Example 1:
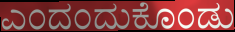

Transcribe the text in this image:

ಎಂದಂದುಕೊಂಡು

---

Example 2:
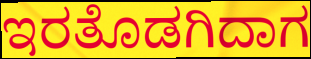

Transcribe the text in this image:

ಇರತೊಡಗಿದಾಗ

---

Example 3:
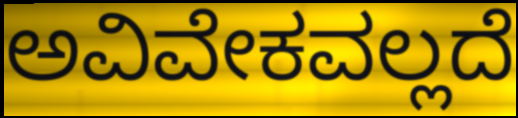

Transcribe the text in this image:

ಅವಿವೇಕವಲ್ಲದೆ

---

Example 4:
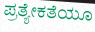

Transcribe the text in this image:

ಪ್ರತ್ಯೇಕತೆಯೂ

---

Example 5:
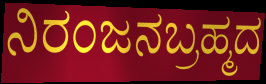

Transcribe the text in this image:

ನಿರಂಜನಬ್ರಹ್ಮದ